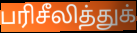
பரிசீலித்துக்